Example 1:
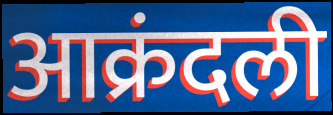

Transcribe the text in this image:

आक्रंदली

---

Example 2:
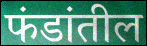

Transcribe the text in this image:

फंडांतील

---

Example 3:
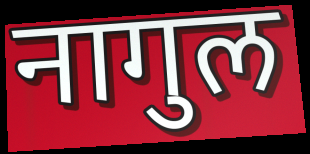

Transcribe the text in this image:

नागुल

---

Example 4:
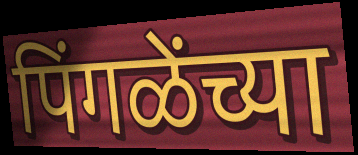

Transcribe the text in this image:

पिंगळेंच्या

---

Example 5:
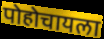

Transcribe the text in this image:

पोहोचायला